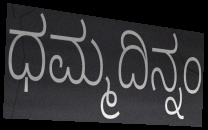
ಧಮ್ಮದಿನ್ನಂ